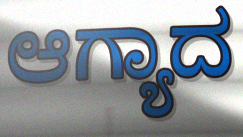
ಆಗ್ಯಾದ